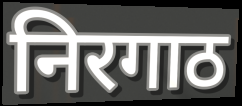
निरगाठ